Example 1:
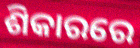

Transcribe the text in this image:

ଶିକାରରେ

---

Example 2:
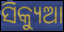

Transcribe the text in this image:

ସିକ୍ୟୁଆ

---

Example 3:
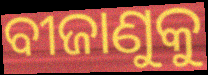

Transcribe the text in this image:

ବୀଜାଣୁକୁ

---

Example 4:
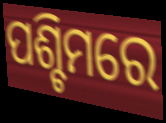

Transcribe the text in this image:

ପଶ୍ଚିମରେ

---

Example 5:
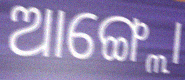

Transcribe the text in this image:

ଆଙ୍ଗ୍ଲୋ